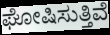
ಘೋಷಿಸುತ್ತಿವೆ